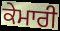
ਕੇਮਾਰੀ